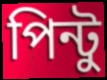
পিন্টু